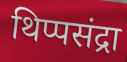
थिप्पसंद्रा